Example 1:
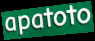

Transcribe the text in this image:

apatoto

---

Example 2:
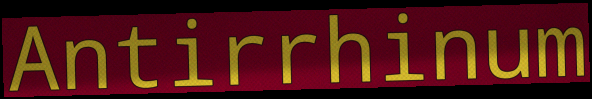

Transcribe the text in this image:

Antirrhinum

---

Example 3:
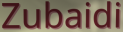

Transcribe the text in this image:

Zubaidi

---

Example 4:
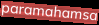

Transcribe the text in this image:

paramahamsa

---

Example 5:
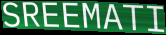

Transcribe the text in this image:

SREEMATI